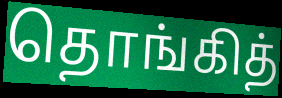
தொங்கித்